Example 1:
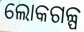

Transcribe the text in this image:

ଲୋକଗଳ୍ପ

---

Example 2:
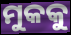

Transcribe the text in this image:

ମୁକକୁ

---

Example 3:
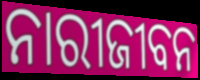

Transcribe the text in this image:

ନାରୀଜୀବନ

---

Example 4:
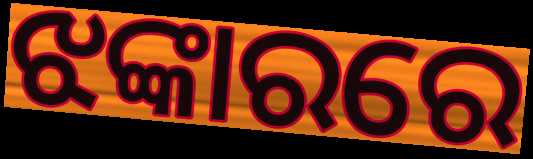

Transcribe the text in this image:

ଝଙ୍କାରରେ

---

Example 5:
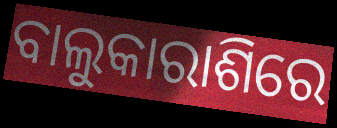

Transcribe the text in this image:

ବାଲୁକାରାଶିରେ